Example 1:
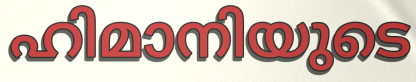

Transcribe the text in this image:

ഹിമാനിയുടെ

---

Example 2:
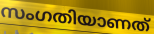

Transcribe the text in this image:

സംഗതിയാണത്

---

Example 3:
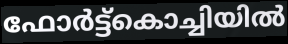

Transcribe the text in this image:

ഫോർട്ട്കൊച്ചിയിൽ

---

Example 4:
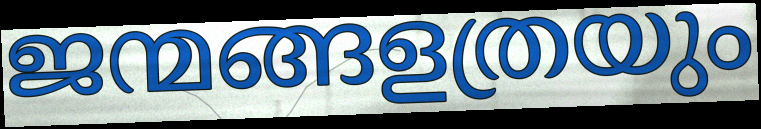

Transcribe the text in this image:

ജന്മങ്ങളത്രയും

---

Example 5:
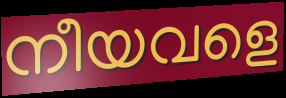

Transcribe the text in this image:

നീയവളെ